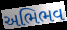
અભિભવ